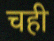
चही